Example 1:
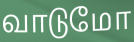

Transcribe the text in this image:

வாடுமோ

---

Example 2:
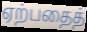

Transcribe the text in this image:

ஏற்பதைத்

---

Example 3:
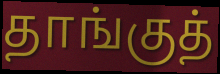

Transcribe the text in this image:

தாங்குத்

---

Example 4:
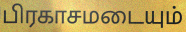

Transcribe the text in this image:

பிரகாசமடையும்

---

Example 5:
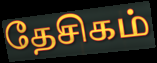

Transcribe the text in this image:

தேசிகம்